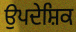
ਉਪਦੇਸ਼ਿਕ